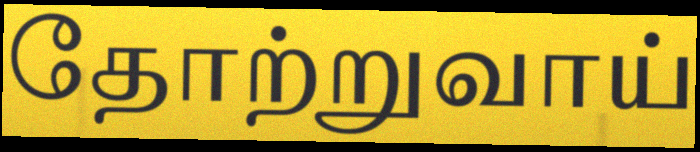
தோற்றுவாய்